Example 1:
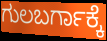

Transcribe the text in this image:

ಗುಲಬರ್ಗಾಕ್ಕೆ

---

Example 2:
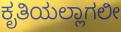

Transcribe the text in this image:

ಕೃತಿಯಲ್ಲಾಗಲೀ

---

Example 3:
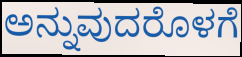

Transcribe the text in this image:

ಅನ್ನುವುದರೊಳಗೆ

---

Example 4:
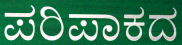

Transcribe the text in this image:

ಪರಿಪಾಕದ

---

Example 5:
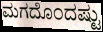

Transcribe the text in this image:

ಮಗದೊಂದಷ್ಟು